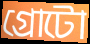
গ্রোটো